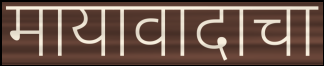
मायावादाचा